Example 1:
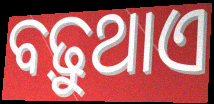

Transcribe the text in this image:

ବଢ଼ୁଥାଏ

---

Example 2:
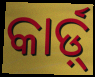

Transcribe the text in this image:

କାର୍ଡ଼୍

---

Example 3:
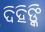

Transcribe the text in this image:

ଦିହିଙ୍କି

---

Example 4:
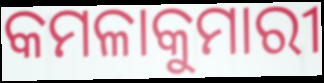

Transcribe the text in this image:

କମଳାକୁମାରୀ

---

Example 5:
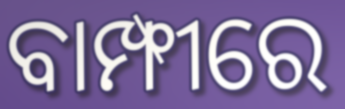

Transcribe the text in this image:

ବାମ୍ଫୀରେ